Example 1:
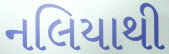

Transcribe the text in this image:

નલિયાથી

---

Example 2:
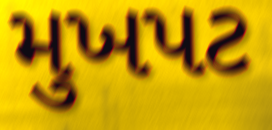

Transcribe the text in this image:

મુખપટ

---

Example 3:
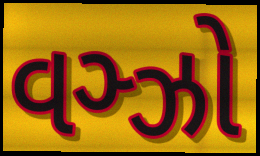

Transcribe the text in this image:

વઞ્ઝો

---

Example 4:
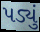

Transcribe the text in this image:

પડ્યું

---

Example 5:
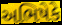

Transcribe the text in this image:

અભિષેકે